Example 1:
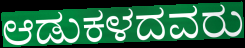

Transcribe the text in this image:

ಆಡುಕಳದವರು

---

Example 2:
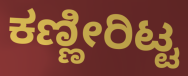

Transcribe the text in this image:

ಕಣ್ಣೀರಿಟ್ಟ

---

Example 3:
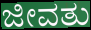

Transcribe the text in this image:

ಜೀವತು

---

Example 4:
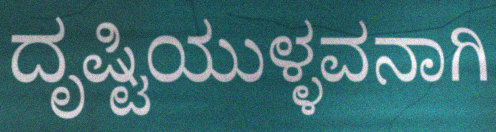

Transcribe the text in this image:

ದೃಷ್ಟಿಯುಳ್ಳವನಾಗಿ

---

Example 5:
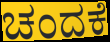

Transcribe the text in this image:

ಚಂದಕೆ